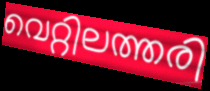
വെറ്റിലത്തരി